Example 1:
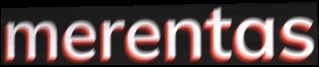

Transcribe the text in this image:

merentas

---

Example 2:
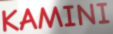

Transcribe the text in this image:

KAMINI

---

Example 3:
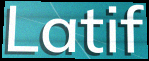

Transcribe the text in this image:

Latif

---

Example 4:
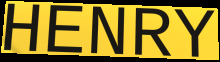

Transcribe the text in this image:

HENRY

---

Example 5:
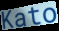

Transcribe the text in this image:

Kato